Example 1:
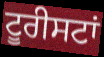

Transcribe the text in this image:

ਟੂਰੀਸਟਾਂ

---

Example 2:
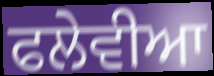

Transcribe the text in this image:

ਫਲੇਵੀਆ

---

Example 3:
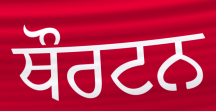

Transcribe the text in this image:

ਥੌਰਟਨ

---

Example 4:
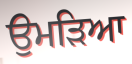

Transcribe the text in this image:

ਉਮੜਿਆ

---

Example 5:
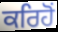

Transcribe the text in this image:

ਕਰਿਹੋਂ